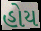
હોય